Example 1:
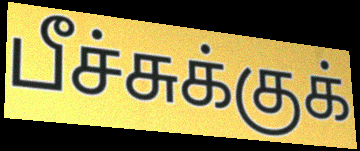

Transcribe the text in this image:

பீச்சுக்குக்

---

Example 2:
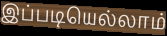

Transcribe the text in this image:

இப்படியெல்லாம்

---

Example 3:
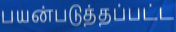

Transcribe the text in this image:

பயன்படுத்தப்பட்ட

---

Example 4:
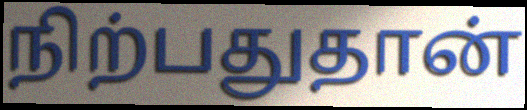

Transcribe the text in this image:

நிற்பதுதான்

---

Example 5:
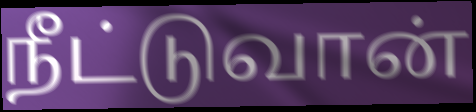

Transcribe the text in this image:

நீட்டுவான்